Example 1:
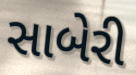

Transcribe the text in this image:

સાબેરી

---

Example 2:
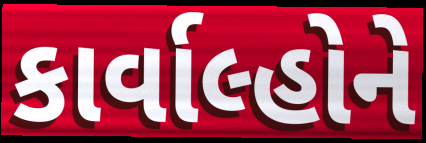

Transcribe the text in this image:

કાર્વાલ્હોને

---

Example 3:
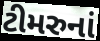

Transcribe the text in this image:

ટીમરુનાં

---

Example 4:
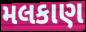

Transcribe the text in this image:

મલકાણ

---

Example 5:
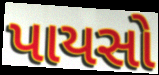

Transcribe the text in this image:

પાયસો